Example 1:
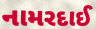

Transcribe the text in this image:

નામરદાઈ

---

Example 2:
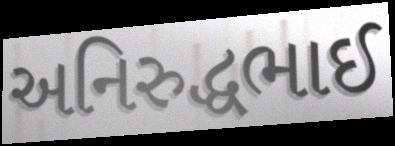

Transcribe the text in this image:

અનિરુદ્ધભાઈ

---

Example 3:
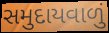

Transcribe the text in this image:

સમુદાયવાળું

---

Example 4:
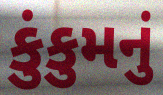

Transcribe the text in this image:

કુંકુમનું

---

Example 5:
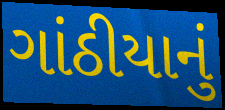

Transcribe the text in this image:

ગાંઠીયાનું